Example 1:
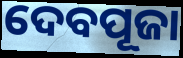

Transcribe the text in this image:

ଦେବପୂଜା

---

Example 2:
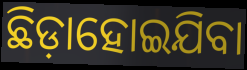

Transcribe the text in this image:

ଛିଡ଼ାହୋଇଯିବା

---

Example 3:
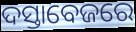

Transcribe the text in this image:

ଦସ୍ତାବେଜରେ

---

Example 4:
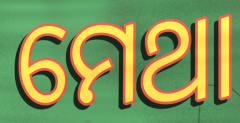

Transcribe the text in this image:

ମେଥା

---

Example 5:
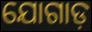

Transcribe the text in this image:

ଯୋଗାଡ଼